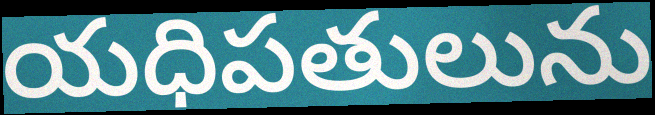
యధిపతులును